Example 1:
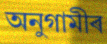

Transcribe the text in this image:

অনুগামীৰ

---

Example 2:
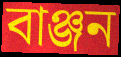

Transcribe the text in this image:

বাঞ্জন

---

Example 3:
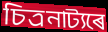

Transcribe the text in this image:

চিত্ৰনাট্যৰে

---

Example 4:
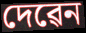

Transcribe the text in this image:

দেৱেন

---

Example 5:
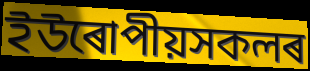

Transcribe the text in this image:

ইউৰোপীয়সকলৰ